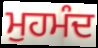
ਮੁਹਮੰਦ